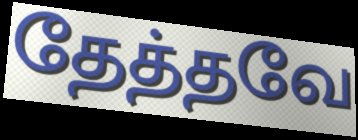
தேத்தவே